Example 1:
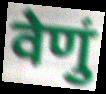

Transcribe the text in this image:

वेणुं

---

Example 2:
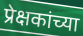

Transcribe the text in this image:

प्रेक्षकांच्या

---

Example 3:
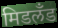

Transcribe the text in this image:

मिडलँड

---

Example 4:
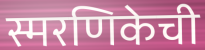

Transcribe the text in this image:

स्मरणिकेची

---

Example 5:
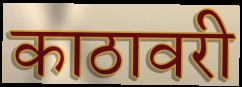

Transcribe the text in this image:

काठावरी